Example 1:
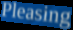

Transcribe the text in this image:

Pleasing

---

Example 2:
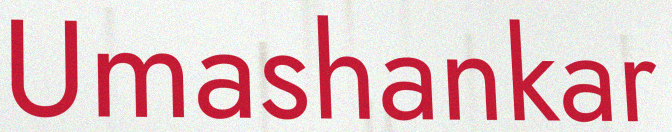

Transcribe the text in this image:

Umashankar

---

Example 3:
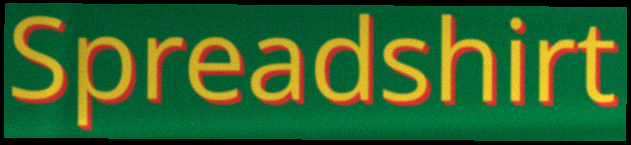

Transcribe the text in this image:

Spreadshirt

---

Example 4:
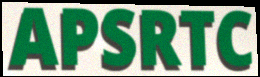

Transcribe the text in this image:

APSRTC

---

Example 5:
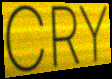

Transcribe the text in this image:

CRY